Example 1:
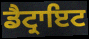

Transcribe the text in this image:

ਡੈਟ੍ਰਾਇਟ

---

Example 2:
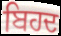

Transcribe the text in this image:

ਬਿਹਦ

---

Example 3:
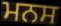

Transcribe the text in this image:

ਮਨਸ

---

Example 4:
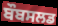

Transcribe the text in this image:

ਬੌਬਸਲਡ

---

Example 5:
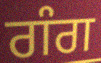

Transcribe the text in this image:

ਗੰਗ